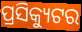
ପ୍ରସିକ୍ୟୁଟର